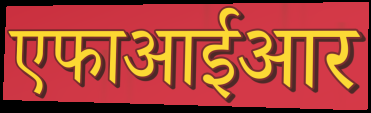
एफाआईआर